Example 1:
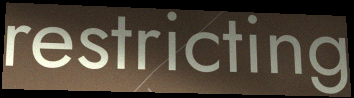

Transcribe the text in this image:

restricting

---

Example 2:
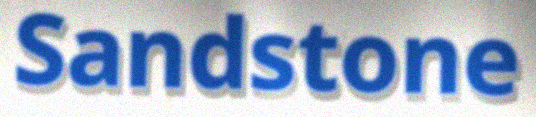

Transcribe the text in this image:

Sandstone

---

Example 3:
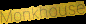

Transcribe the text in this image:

Monkhouse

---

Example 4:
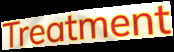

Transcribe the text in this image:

Treatment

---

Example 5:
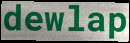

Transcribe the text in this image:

dewlap